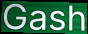
Gash